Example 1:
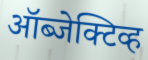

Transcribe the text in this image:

ऑब्जेक्टिव्ह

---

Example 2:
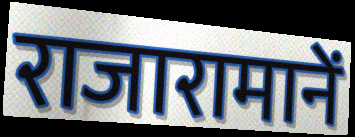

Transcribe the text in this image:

राजारामानें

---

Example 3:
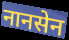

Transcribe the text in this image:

नानसेन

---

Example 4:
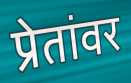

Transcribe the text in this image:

प्रेतांवर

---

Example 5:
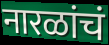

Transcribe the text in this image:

नारळांचं